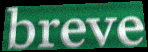
breve